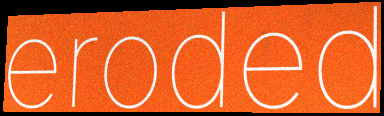
eroded